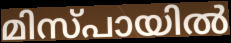
മിസ്പായിൽ